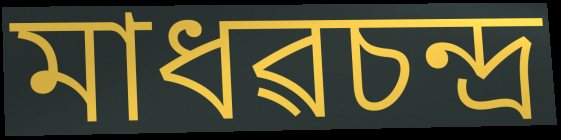
মাধৱচন্দ্ৰ